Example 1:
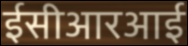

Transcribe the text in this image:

ईसीआरआई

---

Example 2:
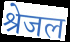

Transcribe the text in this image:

श्रेजल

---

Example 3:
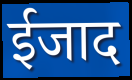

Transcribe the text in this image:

ईजाद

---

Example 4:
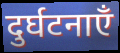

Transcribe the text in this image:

दुर्घटनाएँ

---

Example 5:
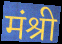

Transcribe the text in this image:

मंश्री